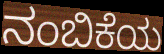
ನಂಬಿಕೆಯ